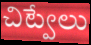
చిట్వేలు